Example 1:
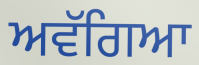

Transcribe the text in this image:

ਅਵੱਗਿਆ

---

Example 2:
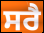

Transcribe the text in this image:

ਸਰੈ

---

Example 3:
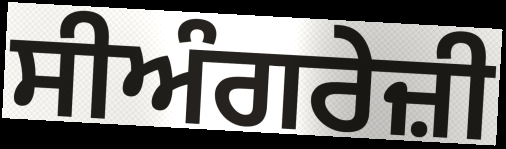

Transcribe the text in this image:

ਸੀਅੰਗਰੇਜ਼ੀ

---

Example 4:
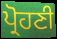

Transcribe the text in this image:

ਪ੍ਰੋਹਣੀ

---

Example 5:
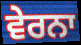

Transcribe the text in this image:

ਵੇਰਨਾ